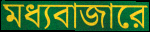
মধ্যবাজারে